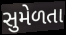
સુમેળતા